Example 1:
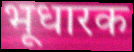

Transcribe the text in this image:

भूधारक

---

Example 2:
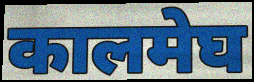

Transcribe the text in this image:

कालमेघ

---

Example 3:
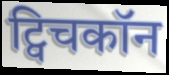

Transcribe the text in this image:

ट्विचकॉन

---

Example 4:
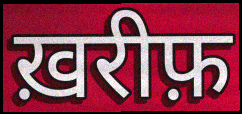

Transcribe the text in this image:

ख़रीफ़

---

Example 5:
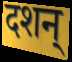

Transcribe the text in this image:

दशन्